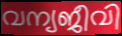
വന്യജീവി